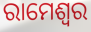
ରାମେଶ୍ୱର